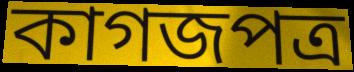
কাগজপত্র